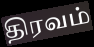
திரவம்